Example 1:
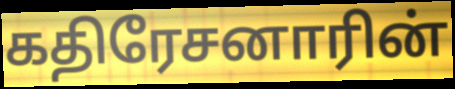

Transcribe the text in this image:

கதிரேசனாரின்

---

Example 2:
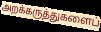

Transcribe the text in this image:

அறக்கருத்துகளைப்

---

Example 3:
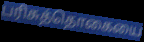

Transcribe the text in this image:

பரிசுத்தொகையை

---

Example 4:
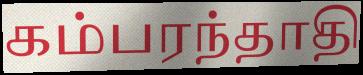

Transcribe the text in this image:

கம்பரந்தாதி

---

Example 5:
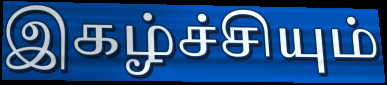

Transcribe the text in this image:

இகழ்ச்சியும்